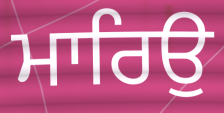
ਮਾਰਿਉ